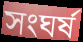
সংঘর্ষ